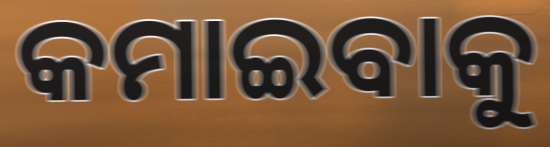
କମାଇବାକୁ